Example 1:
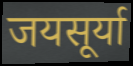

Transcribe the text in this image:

जयसूर्या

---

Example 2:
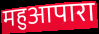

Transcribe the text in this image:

महुआपारा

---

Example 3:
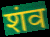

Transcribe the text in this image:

शंव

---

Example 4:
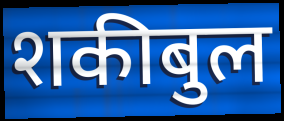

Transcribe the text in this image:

शकीबुल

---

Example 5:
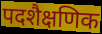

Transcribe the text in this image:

पदशैक्षणिक